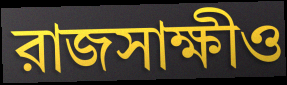
রাজসাক্ষীও